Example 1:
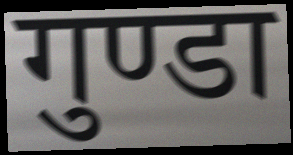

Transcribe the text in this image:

गुण्डा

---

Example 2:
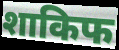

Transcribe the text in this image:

शाकिफ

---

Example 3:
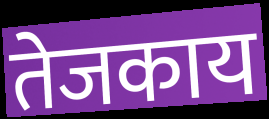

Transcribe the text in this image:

तेजकाय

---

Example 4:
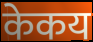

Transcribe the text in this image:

केकय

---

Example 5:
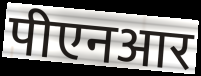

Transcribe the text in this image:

पीएनआर